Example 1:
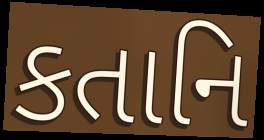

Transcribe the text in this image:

કતાનિ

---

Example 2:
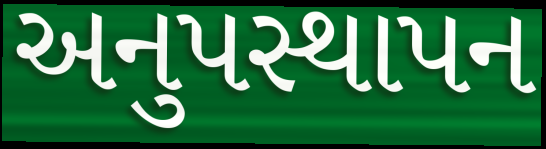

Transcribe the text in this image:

અનુપસ્થાપન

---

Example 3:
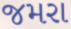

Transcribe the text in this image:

જમરા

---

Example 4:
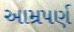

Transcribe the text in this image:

આમ્રપર્ણ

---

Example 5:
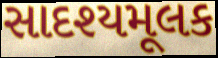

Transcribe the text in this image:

સાદશ્યમૂલક